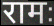
रामः